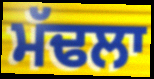
ਮੱਢਲਾ